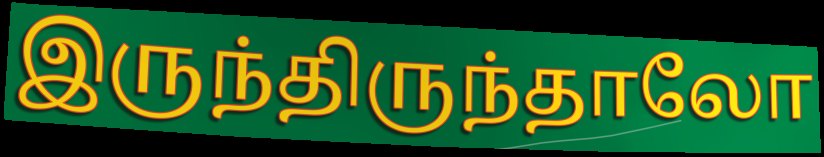
இருந்திருந்தாலோ